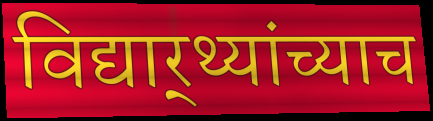
विद्यार्थ्यांच्याच